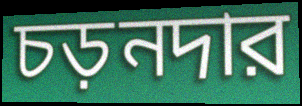
চড়নদার